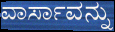
ವಾರ್ಸಾವನ್ನು